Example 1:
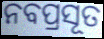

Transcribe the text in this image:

ନବପ୍ରସୂତ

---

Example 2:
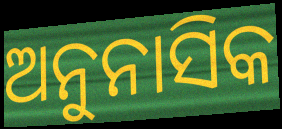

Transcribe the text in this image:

ଅନୁନାସିକ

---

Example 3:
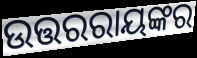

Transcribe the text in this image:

ଉତ୍ତରରାୟଙ୍କର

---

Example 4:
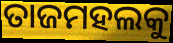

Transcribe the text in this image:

ତାଜମହଲକୁ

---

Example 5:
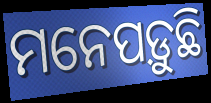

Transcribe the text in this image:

ମନେପଡ଼ୁଛି